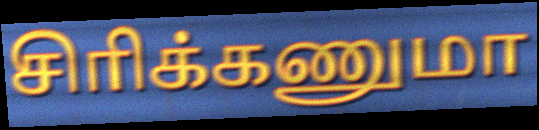
சிரிக்கணுமா